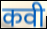
कवी